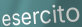
esercito